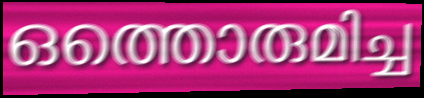
ഒത്തൊരുമിച്ച